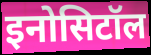
इनोसिटॉल